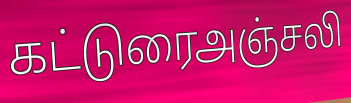
கட்டுரைஅஞ்சலி